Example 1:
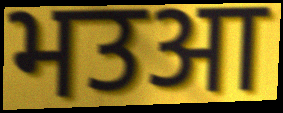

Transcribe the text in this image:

भउआ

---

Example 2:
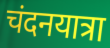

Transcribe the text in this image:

चंदनयात्रा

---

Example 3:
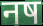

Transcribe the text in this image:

नष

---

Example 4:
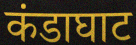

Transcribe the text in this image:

कंडाघाट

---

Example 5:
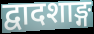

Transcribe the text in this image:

द्वादशाङ्ग